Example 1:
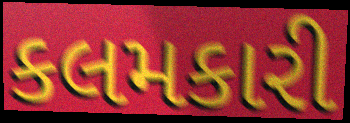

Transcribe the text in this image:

કલમકારી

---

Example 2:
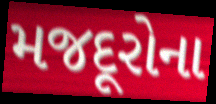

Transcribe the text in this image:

મજદૂરોના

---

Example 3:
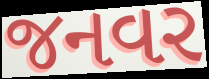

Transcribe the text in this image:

જનવર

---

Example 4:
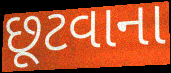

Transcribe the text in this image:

છૂટવાના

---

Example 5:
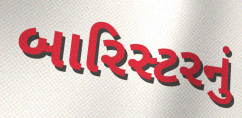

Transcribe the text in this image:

બારિસ્ટરનું